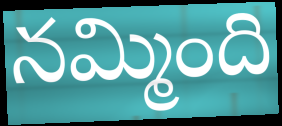
నమ్మింది